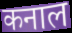
कनाल